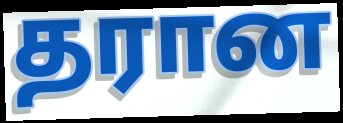
தரான